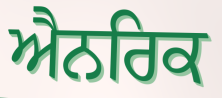
ਐਨਰਿਕ